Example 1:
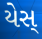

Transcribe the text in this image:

યેસ્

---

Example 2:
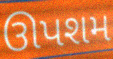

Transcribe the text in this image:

ઊપશમ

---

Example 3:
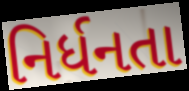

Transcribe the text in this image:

નિર્ધનતા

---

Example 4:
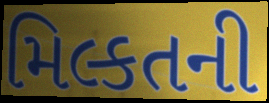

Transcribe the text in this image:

મિલ્કતની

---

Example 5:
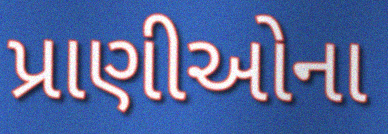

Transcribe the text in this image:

પ્રાણીઓના